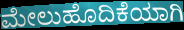
ಮೇಲುಹೊದಿಕೆಯಾಗಿ